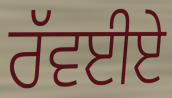
ਰੱਵਈਏ